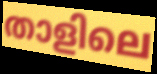
താളിലെ